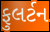
ફુલર્ટન